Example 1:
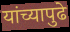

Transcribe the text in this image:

यांच्यापुढे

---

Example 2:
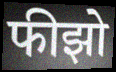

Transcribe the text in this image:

फीझो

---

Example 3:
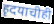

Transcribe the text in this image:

हृदयाचीही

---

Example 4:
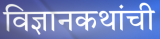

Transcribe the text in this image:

विज्ञानकथांची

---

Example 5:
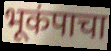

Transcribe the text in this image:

भूकंपाचा